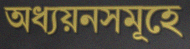
অধ্যয়নসমূহে